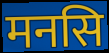
मनसि